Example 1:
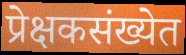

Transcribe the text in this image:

प्रेक्षकसंख्येत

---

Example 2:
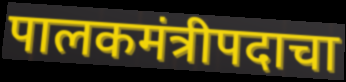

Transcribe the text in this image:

पालकमंत्रीपदाचा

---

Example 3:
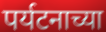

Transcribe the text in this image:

पर्यटनाच्या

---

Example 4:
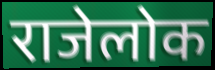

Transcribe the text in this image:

राजेलोक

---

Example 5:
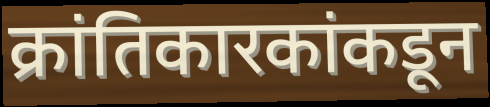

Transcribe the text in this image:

क्रांतिकारकांकडून